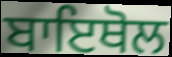
ਬਾਇਥੋਲ